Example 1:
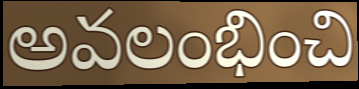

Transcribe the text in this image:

అవలంభించి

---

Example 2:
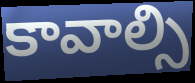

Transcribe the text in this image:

కావాల్సి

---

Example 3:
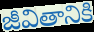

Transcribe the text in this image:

జీవితానికి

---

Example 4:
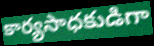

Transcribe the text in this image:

కార్యసాధకుడిగా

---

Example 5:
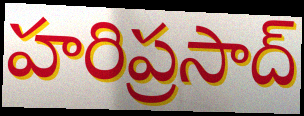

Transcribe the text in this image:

హరిప్రసాద్